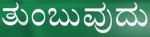
ತುಂಬುವುದು